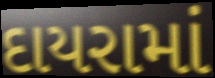
દાયરામાં